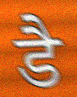
डै